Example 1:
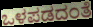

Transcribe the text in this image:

ಒಳಪಡದಂತೆ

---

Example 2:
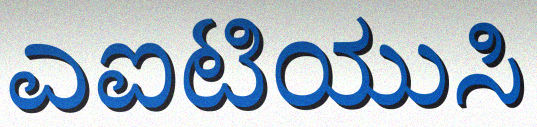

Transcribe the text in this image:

ಎಐಟಿಯುಸಿ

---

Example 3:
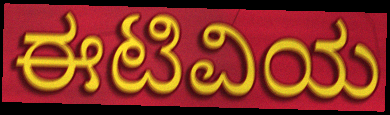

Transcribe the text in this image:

ಈಟಿವಿಯ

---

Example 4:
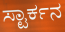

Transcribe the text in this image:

ಸ್ಟಾರ್ಕನ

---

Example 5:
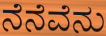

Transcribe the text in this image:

ನೆನೆವೆನು